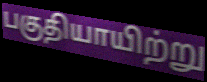
பகுதியாயிற்று